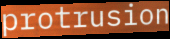
protrusion